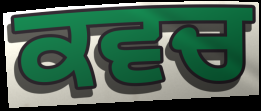
ਕਵਚ